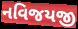
નવિજયજી